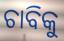
ଚାବିକୁ